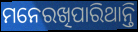
ମନେରଖିପାରିଥାନ୍ତି